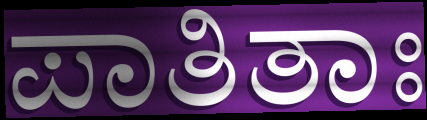
ಪಾತಿತಾಃ